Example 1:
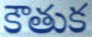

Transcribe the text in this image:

కౌతుక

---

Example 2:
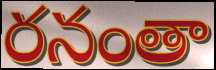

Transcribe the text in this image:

రనంతా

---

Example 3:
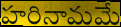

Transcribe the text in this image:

హరినామమే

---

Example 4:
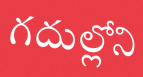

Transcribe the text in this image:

గదుల్లోని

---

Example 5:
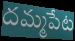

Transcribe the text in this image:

దమ్మపేట